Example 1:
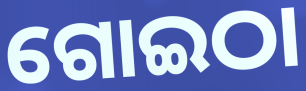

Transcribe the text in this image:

ଗୋଇଠା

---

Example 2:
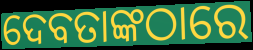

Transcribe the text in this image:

ଦେବତାଙ୍କଠାରେ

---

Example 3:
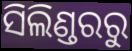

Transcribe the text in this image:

ସିଲିଣ୍ଡରରୁ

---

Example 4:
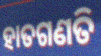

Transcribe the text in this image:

ହାତଗଣତି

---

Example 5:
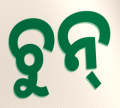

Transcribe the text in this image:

ଚୁନ୍